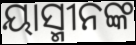
ୟାସ୍ମୀନଙ୍କ